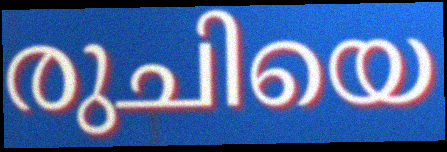
രുചിയെ